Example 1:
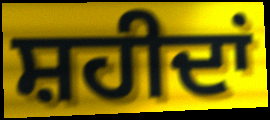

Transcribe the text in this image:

ਸ਼ਹੀਦਾਂ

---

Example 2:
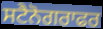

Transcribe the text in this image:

ਸਟੈਨੋਗਰਾਫਰ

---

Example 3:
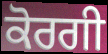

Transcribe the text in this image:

ਕੋਰਗੀ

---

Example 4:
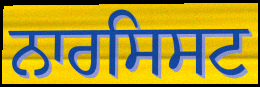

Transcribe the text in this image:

ਨਾਰਸਿਸਟ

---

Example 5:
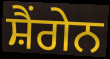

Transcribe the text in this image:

ਸ਼ੈਂਗੇਨ